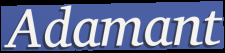
Adamant